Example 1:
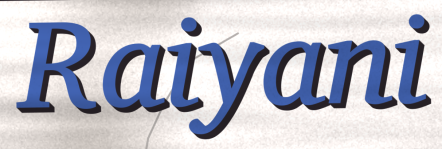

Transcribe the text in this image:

Raiyani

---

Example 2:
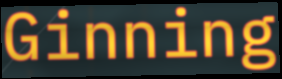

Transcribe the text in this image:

Ginning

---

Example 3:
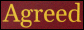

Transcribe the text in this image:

Agreed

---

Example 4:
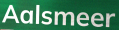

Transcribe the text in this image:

Aalsmeer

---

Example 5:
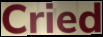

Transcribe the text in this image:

Cried